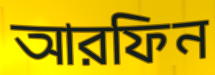
আরফিন